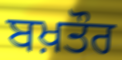
ਬਖ਼ਤੌਰ